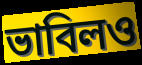
ভাবিলও